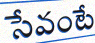
సేవంటే